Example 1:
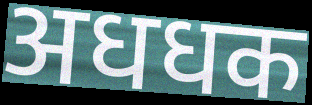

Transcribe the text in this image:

अधधक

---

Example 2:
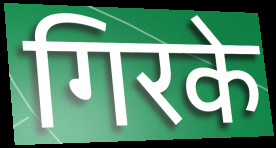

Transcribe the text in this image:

गिरके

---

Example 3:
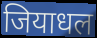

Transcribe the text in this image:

जियाधल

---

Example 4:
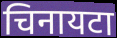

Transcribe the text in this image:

चिनायटा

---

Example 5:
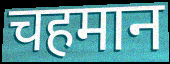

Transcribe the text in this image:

चहमान